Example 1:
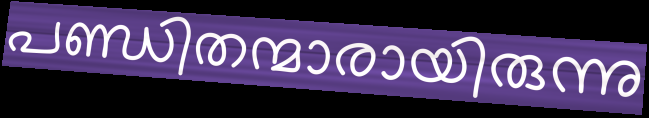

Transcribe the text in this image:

പണ്ഡിതന്മാരായിരുന്നു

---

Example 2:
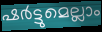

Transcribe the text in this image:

ഷർട്ടുമെല്ലാം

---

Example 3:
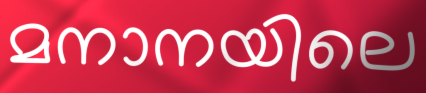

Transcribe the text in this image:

മനാനയിലെ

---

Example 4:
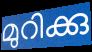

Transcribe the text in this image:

മുറിക്കു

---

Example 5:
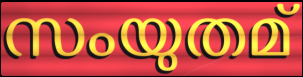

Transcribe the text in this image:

സംയുതമ്